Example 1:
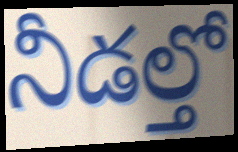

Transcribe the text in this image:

నీడల్తో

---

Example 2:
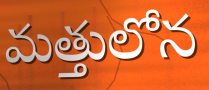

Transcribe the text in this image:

మత్తులోన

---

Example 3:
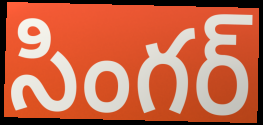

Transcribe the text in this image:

సింగర్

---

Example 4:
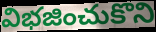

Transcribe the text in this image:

విభజించుకొని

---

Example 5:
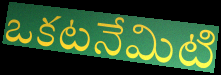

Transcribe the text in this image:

ఒకటనేమిటి